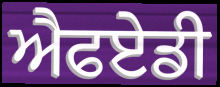
ਐਫਏਡੀ